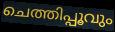
ചെത്തിപ്പൂവും